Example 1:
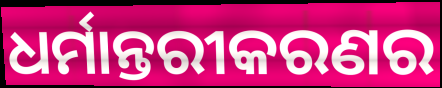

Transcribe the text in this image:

ଧର୍ମାନ୍ତରୀକରଣର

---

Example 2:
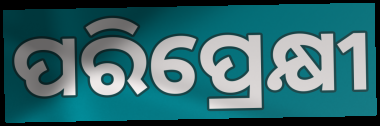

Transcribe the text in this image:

ପରିପ୍ରେକ୍ଷୀ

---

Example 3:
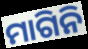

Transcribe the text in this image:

ମାଗିନି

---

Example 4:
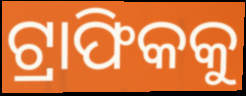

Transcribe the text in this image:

ଟ୍ରାଫିକକୁ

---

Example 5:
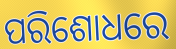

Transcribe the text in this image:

ପରିଶୋଧରେ